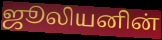
ஜூலியனின்